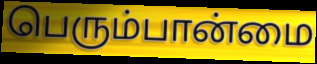
பெரும்பான்மை